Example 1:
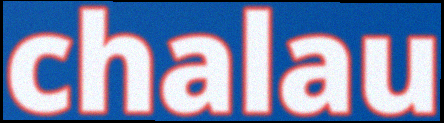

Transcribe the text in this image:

chalau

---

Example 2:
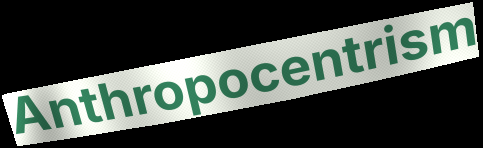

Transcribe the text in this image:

Anthropocentrism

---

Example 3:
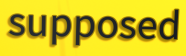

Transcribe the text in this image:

supposed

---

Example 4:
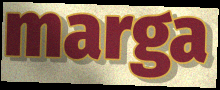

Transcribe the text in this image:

marga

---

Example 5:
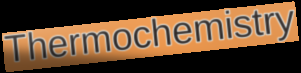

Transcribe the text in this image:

Thermochemistry